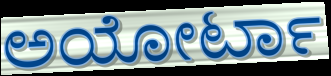
ಅಯೋರ್ಟಾ